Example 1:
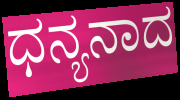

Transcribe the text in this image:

ಧನ್ಯನಾದ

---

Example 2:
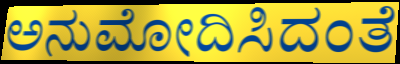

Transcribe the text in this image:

ಅನುಮೋದಿಸಿದಂತೆ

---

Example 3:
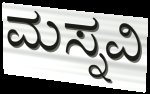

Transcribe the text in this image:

ಮಸ್ನವಿ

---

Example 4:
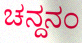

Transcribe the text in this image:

ಚನ್ದನಂ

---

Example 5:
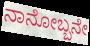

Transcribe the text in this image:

ನಾನೋಬ್ಬನೇ